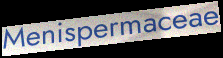
Menispermaceae